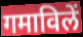
गमाविलें